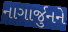
નાગાર્જુનને